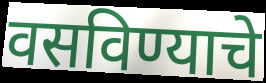
वसविण्याचे